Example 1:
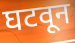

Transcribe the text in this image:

घटवून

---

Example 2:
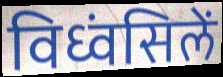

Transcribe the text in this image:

विध्वंसिलें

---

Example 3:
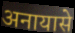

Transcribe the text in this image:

अनायासे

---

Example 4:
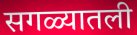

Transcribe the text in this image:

सगळ्यातली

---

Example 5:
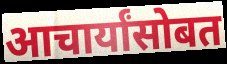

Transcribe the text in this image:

आचार्यांसोबत